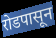
रोडपासून